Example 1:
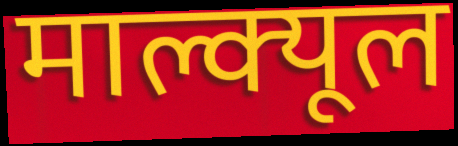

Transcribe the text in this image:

माल्क्यूल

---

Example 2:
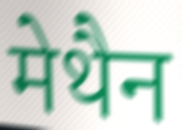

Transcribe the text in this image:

मेथैन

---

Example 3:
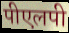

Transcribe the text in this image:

पीएलपी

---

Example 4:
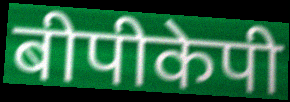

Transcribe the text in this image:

बीपीकेपी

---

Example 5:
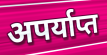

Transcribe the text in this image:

अपर्याप्त